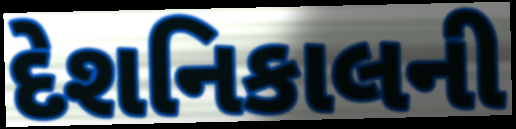
દેશનિકાલની